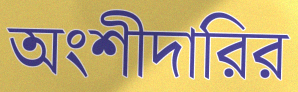
অংশীদারির